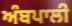
ਅੰਬਪਾਲੀ